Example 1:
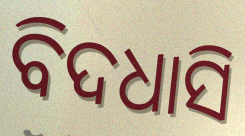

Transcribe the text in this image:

ବିଦଧାସି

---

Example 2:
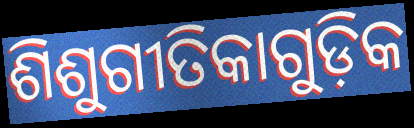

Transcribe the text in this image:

ଶିଶୁଗୀତିକାଗୁଡ଼ିକ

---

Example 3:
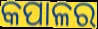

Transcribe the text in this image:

କପାଳର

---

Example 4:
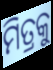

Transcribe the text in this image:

ମିତ୍ରକୁ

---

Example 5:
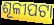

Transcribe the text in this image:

ଶୂଳୀପଟା